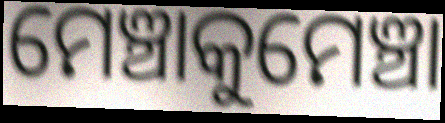
ମେଞ୍ଚାକୁମେଞ୍ଚା